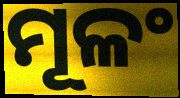
ମୂଳଂ